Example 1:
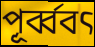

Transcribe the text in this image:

পূর্ব্ববৎ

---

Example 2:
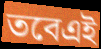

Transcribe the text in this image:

তবেএই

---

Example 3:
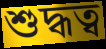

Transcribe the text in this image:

শুদ্ধত্ব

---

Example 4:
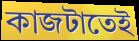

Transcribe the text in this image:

কাজটাতেই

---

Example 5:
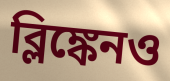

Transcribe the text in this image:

ব্লিঙ্কেনও